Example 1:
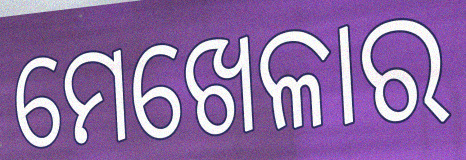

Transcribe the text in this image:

ମେଖେଳାର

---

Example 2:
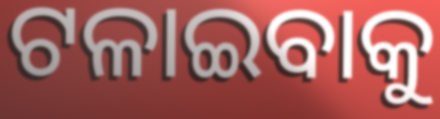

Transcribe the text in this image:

ଟଳାଇବାକୁ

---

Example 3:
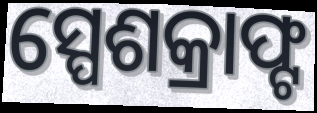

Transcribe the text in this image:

ସ୍ପେଶକ୍ରାଫ୍ଟ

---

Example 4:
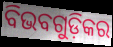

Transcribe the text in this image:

ବିଭବଗୁଡ଼ିକର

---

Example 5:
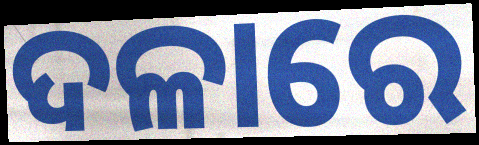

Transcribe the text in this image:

ଦଳାରେ